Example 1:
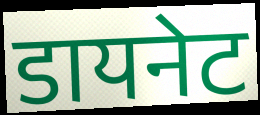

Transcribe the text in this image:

डायनेट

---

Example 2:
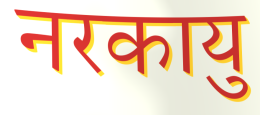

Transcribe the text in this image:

नरकायु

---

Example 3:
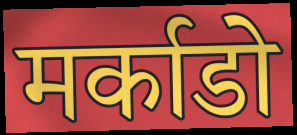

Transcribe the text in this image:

मर्काडो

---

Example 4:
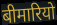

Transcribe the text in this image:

बीमारियो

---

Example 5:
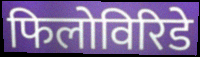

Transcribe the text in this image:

फिलोविरिडे